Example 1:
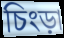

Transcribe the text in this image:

চিংড়া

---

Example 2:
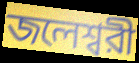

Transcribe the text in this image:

জলেশ্বরী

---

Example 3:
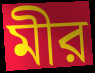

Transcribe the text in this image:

মীর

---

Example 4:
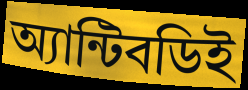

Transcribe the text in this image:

অ্যান্টিবডিই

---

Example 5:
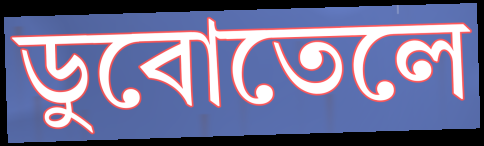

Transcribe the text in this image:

ডুবোতেলে